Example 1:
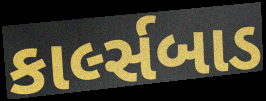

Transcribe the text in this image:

કાર્લ્સબાડ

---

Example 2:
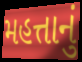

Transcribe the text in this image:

મહત્તાનું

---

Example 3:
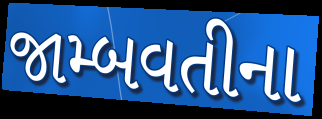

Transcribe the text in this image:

જામ્બવતીના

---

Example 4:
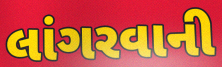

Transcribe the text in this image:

લાંગરવાની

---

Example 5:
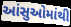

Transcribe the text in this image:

આંસુઓમાંથી